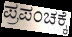
ಪ್ರಪಂಚಕ್ಕೆ